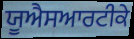
ਯੂਐਸਆਰਟੀਕੇ